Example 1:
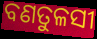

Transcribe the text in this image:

ବଣତୁଳସୀ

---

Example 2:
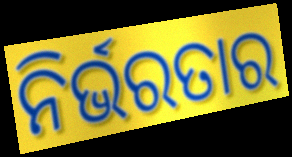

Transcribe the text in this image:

ନିର୍ଭରତାର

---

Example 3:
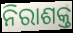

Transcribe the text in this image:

ନିରାଶକ୍ତ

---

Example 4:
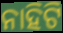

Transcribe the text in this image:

ନାହିଟି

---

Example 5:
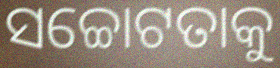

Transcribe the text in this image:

ସଚ୍ଚୋଟତାକୁ